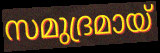
സമുദ്രമായ്